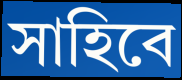
সাহিবে